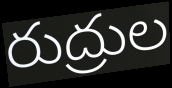
రుద్రుల